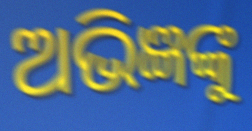
ଅଭିଜ୍ଞଙ୍କୁ